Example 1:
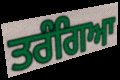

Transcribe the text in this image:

ਤਰੰਗਿਆ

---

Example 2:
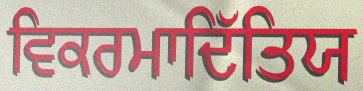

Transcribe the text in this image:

ਵਿਕਰਮਾਦਿੱਤਿਯ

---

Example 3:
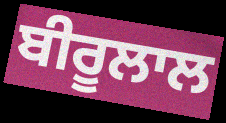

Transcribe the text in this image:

ਬੀਰੂਲਾਲ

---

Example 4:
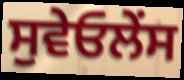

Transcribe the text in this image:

ਸੁਵੇਓਲੇਂਸ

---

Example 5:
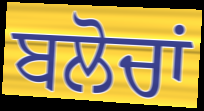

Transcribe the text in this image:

ਬਲੋਚਾਂ